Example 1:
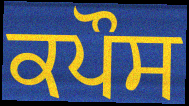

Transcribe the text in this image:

ਕਪੌਸ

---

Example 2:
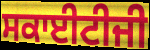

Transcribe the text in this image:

ਸਕਾਈਟੀਜੀ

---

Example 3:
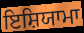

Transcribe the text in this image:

ਇਸ਼ਿਯਾਮਾ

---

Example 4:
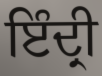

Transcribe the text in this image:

ਇੰਦ੍ਰੀ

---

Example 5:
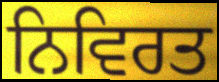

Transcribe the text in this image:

ਨਿਵਿਰਤ